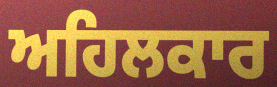
ਅਹਿਲਕਾਰ